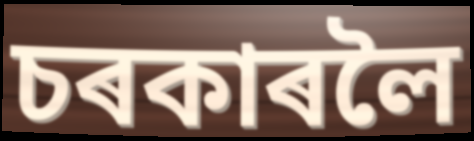
চৰকাৰলৈ